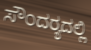
ಸೌಂದರ‍್ಯದಲ್ಲಿ